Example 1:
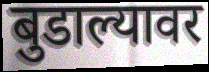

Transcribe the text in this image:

बुडाल्यावर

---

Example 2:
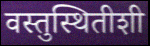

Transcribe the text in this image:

वस्तुस्थितीशी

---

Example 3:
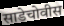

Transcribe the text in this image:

साडेचोवीस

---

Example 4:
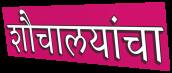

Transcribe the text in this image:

शौचालयांचा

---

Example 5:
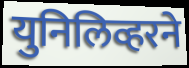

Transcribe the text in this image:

युनिलिव्हरने